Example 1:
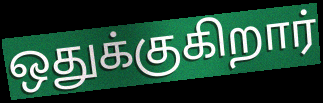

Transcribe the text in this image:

ஒதுக்குகிறார்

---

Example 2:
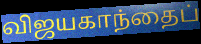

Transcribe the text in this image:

விஜயகாந்தைப்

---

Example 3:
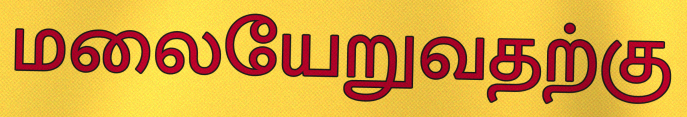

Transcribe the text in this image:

மலையேறுவதற்கு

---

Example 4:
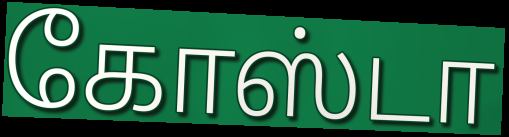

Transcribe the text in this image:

கோஸ்டா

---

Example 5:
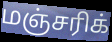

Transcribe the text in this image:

மஞ்சரிக்